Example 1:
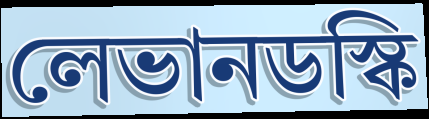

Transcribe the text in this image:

লেভানডস্কি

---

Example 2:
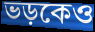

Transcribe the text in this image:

ভড়কেও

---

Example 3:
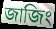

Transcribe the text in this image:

জাজিং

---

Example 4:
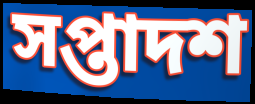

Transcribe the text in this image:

সপ্তাদশ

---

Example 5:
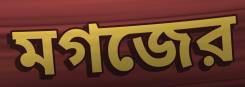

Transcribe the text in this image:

মগজের